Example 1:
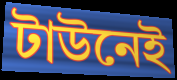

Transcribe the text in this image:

টাউনেই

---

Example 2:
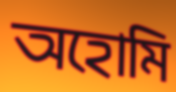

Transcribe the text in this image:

অহোমি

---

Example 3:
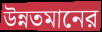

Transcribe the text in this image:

উন্নতমানের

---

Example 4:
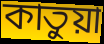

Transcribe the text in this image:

কাতুয়া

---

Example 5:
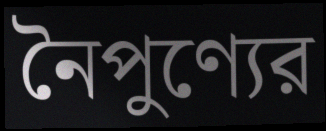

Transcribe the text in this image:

নৈপুণ্যের